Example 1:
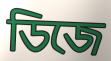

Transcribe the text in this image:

ডিজে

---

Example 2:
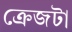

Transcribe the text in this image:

ক্রেজটা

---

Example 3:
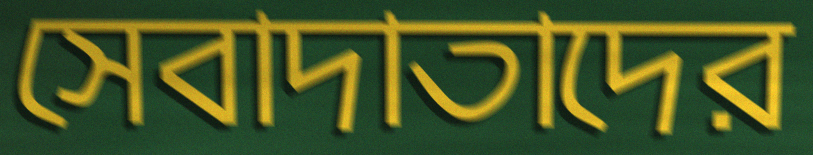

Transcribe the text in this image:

সেবাদাতাদের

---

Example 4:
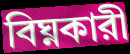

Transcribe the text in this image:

বিঘ্নকারী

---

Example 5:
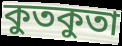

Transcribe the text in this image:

কুতকুতা